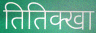
तितिक्खा